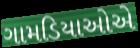
ગામડિયાઓએ